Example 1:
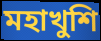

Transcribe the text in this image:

মহাখুশি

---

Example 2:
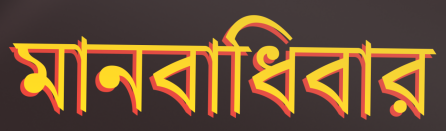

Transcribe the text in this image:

মানবাধিবার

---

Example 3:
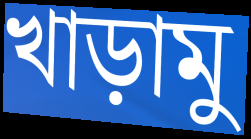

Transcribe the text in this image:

খাড়ামু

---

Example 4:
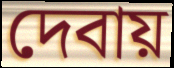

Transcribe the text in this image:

দেবায়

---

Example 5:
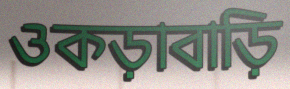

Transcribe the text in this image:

ওকড়াবাড়ি